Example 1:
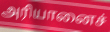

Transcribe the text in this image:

அரியானைச்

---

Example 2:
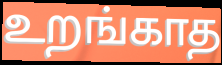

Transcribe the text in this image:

உறங்காத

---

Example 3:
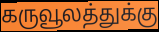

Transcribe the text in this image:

கருவூலத்துக்கு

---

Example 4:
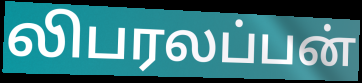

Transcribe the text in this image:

லிபரலப்பன்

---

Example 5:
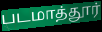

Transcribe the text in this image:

படமாத்தூர்